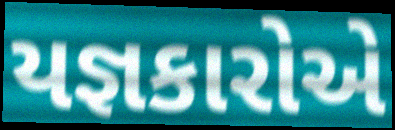
યજ્ઞકારોએ